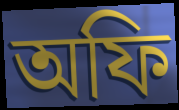
অফি